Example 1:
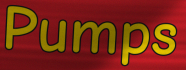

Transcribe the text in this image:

Pumps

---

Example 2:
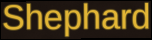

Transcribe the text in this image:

Shephard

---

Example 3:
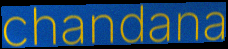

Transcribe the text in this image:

chandana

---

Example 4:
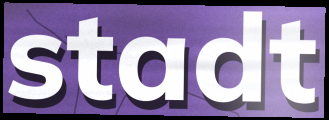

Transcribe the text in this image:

stadt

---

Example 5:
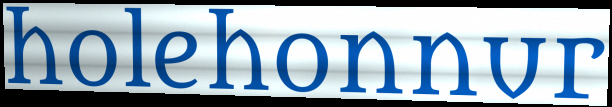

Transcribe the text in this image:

holehonnur